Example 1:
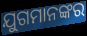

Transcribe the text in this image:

ଯୁଗମାନଙ୍କର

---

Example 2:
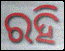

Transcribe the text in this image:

ରହି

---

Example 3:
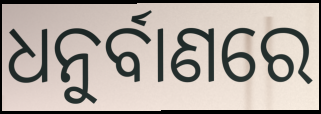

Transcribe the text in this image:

ଧନୁର୍ବାଣରେ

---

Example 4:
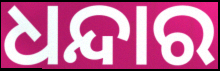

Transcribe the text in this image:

ଧନ୍ଦାର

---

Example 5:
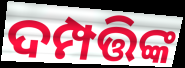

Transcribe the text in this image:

ଦମ୍ପତ୍ତିଙ୍କ